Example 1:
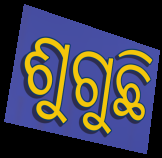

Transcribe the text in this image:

ଶୁଗୁଛି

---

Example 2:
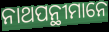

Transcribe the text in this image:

ନାଥପନ୍ଥୀମାନେ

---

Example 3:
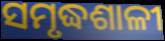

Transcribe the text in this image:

ସମୃଦ୍ଧଶାଳୀ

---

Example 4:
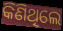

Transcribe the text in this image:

କିଣିଥିଲେ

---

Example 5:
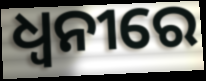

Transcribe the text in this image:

ଧ୍ଵନୀରେ